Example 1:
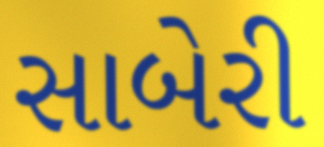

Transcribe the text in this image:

સાબેરી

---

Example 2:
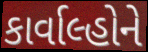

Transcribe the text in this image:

કાર્વાલ્હોને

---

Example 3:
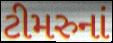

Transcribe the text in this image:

ટીમરુનાં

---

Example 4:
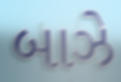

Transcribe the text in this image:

બાઝે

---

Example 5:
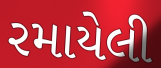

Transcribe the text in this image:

રમાયેલી